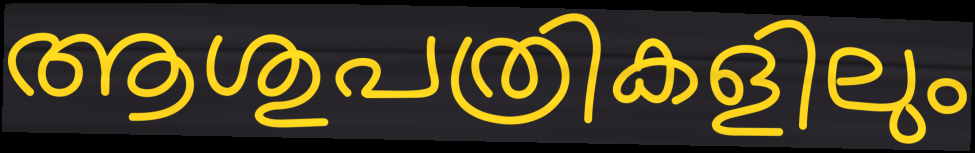
ആശുപത്രികളിലും